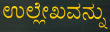
ಉಲ್ಲೇಖವನ್ನು